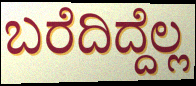
ಬರೆದಿದ್ದೆಲ್ಲ